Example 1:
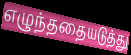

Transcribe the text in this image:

எழுந்ததையடுத்து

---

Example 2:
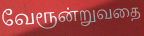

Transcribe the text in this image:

வேரூன்றுவதை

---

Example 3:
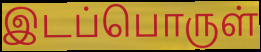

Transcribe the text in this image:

இடப்பொருள்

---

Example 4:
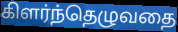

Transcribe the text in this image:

கிளர்ந்தெழுவதை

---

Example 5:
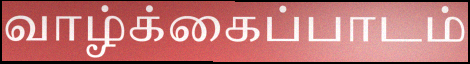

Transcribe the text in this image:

வாழ்க்கைப்பாடம்